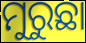
ମୁରୁଛା